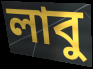
লাবু